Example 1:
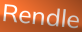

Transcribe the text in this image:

Rendle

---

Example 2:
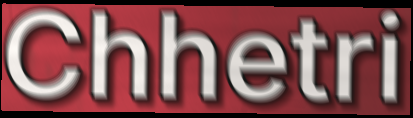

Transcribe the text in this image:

Chhetri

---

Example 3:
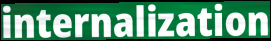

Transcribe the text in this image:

internalization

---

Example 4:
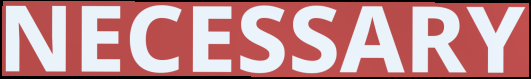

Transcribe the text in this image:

NECESSARY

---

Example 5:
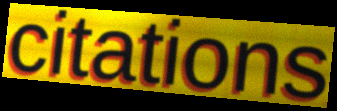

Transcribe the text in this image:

citations